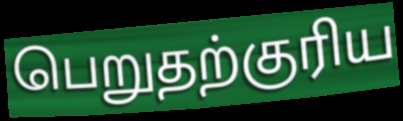
பெறுதற்குரிய